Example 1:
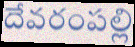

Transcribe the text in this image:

దేవరంపల్లి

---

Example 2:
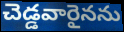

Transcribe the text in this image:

చెడ్డవారైనను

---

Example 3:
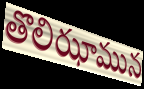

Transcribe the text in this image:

తొలిఝామున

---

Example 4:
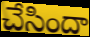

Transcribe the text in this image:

చేసిందా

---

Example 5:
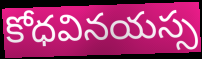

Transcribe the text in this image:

కోధవినయస్స